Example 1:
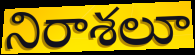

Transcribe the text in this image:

నిరాశలూ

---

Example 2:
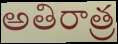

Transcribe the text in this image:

అతిరాత్ర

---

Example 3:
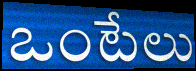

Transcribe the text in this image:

ఒంటేలు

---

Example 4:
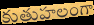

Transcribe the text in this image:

కుతుహలంగా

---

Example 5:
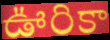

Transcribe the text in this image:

ఊరికా